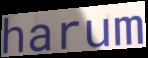
harum